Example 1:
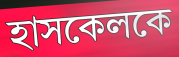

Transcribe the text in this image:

হাসকেলকে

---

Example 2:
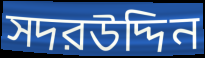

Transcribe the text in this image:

সদরউদ্দিন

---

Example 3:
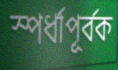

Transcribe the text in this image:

স্পর্ধাপূর্বক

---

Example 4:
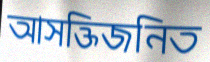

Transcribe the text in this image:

আসক্তিজনিত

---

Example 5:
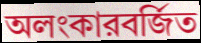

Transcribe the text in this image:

অলংকারবর্জিত